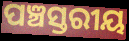
ପଞ୍ଚସ୍ତରୀୟ